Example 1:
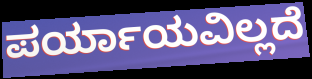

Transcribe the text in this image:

ಪರ್ಯಾಯವಿಲ್ಲದೆ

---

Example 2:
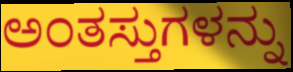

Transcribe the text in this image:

ಅಂತಸ್ತುಗಳನ್ನು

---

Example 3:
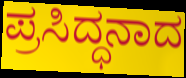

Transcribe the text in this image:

ಪ್ರಸಿದ್ಧನಾದ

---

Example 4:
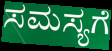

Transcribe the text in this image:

ಸಮಸ್ಯಗೆ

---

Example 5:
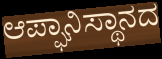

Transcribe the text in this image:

ಆಪ್ಘಾನಿಸ್ಥಾನದ